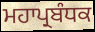
ਮਹਾਪ੍ਰਬੰਧਕ